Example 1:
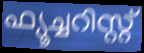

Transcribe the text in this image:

ഫ്യൂച്ചറിസ്റ്റ്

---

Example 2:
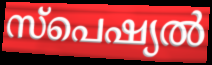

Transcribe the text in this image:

സ്പെഷ്യൽ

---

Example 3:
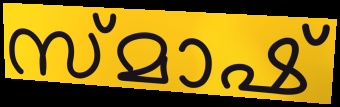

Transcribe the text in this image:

സ്മാഷ്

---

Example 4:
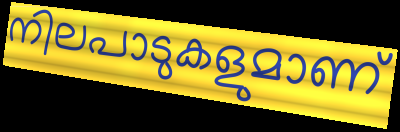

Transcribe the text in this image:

നിലപാടുകളുമാണ്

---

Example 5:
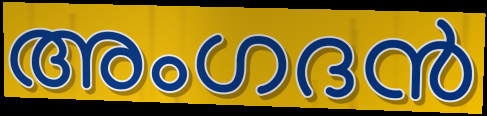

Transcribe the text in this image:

അംഗദൻ